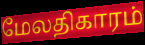
மேலதிகாரம்